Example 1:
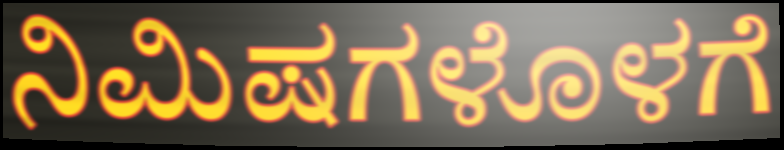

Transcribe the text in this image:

ನಿಮಿಷಗಳೊಳಗೆ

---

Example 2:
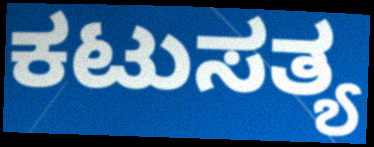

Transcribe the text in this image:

ಕಟುಸತ್ಯ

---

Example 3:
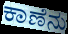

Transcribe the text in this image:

ಕಾಣೆನು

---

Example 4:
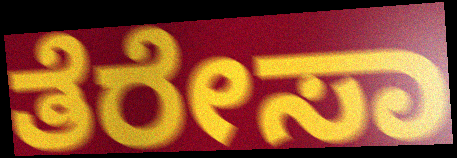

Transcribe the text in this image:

ತೆರೇಸಾ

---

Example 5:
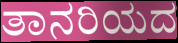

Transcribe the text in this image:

ತಾನರಿಯದ